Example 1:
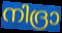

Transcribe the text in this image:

നിദ്രാ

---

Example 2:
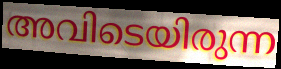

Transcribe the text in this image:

അവിടെയിരുന്ന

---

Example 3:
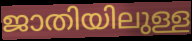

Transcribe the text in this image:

ജാതിയിലുള്ള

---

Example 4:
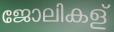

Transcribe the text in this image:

ജോലികള്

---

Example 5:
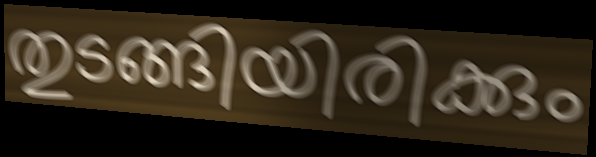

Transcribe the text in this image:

തുടങ്ങിയിരിക്കും